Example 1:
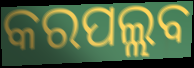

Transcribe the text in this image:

କରପଲ୍ଲବ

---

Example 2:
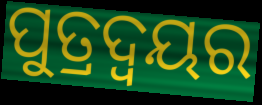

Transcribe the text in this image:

ପୁତ୍ରଦ୍ୱୟର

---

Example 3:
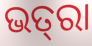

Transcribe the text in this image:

ଭତ୍‌ରା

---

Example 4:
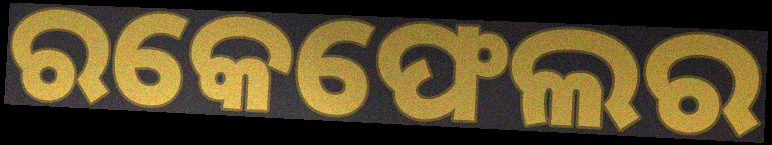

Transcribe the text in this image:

ରକେଫେଲର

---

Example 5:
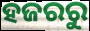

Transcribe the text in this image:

ହଜରରୁ